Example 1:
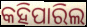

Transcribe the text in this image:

କହିପାରିଲ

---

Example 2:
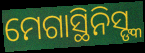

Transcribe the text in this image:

ମେଗାସ୍ଥିନିସ୍ଙ୍କ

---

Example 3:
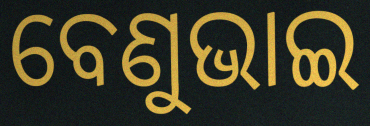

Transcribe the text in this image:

ବେଣୁଭାଇ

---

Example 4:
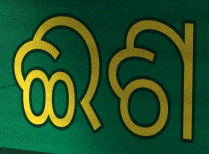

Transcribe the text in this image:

ଈଶ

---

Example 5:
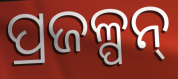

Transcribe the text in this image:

ପ୍ରଜଳ୍ପନ୍